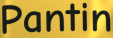
Pantin